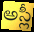
అస్లీ